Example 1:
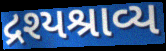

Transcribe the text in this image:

દ્રશ્યશ્રાવ્ય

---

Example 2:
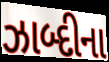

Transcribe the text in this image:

ઝાબ્દીના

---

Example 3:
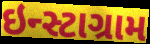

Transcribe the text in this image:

ઇન્સ્ટાગ્રામ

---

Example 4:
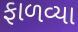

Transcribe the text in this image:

ફાળવ્યા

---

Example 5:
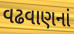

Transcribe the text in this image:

વઢવાણનાં